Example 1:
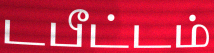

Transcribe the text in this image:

டபீட்டம்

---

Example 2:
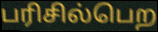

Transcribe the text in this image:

பரிசில்பெற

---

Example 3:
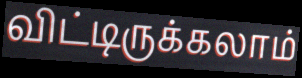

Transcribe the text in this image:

விட்டிருக்கலாம்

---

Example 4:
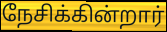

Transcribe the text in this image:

நேசிக்கின்றார்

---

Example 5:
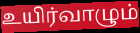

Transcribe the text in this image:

உயிர்வாழும்